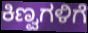
ಕಿಣ್ವಗಳಿಗೆ